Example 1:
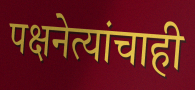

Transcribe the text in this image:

पक्षनेत्यांचाही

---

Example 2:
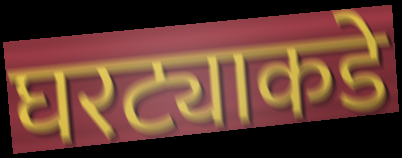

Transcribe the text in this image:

घरट्याकडे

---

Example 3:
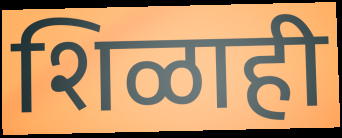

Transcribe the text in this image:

शिळाही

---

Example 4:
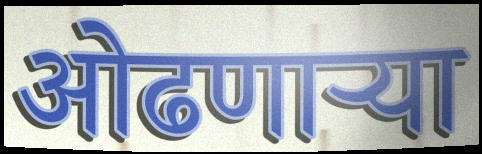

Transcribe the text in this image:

ओढणार्‍या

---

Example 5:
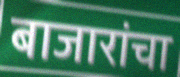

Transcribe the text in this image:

बाजारांचा